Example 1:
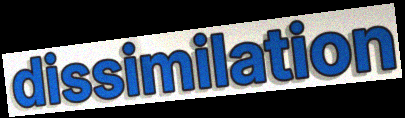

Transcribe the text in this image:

dissimilation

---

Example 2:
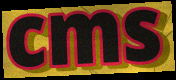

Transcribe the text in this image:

cms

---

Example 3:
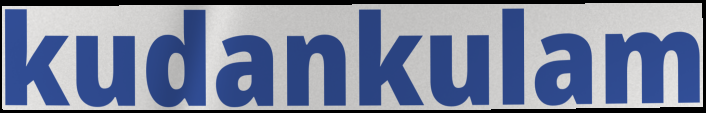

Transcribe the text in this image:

kudankulam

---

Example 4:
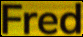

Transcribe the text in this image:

Fred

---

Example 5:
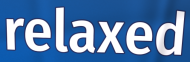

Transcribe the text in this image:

relaxed